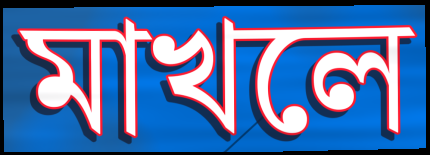
মাখলে